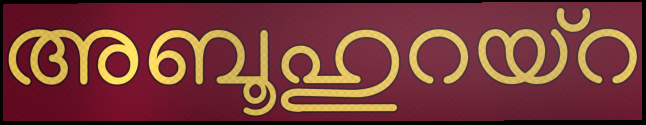
അബൂഹുറയ്റ